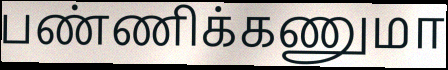
பண்ணிக்கணுமா